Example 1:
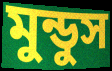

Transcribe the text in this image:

মুন্ডুস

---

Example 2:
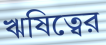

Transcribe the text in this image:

ঋষিত্বের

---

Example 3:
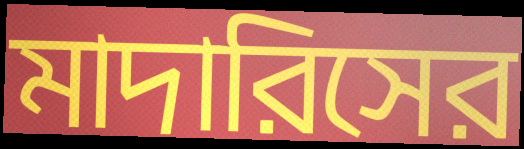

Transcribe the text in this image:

মাদারিসের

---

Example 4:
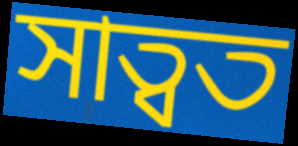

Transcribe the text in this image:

সাত্বত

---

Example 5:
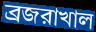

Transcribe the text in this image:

ব্রজরাখাল